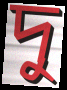
দু